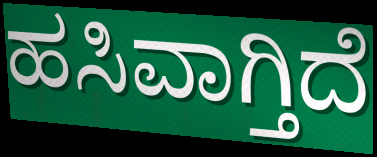
ಹಸಿವಾಗ್ತಿದೆ